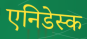
एनिडेस्क